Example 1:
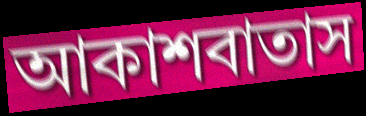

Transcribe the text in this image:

আকাশবাতাস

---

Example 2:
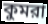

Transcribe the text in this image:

কুমরা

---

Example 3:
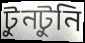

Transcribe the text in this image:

টুনটুনি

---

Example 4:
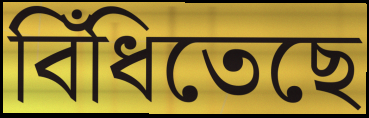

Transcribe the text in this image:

বিঁধিতেছে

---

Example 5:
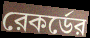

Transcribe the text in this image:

রেকর্ডের